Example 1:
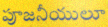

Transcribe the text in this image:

పూజనీయులూ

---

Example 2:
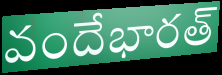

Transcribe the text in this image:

వందేభారత్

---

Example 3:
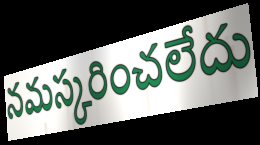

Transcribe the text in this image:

నమస్కరించలేదు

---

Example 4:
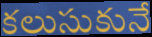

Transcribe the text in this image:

కలుసుకునే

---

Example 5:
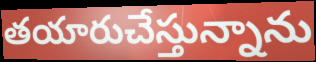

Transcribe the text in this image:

తయారుచేస్తున్నాను